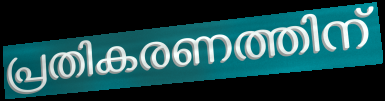
പ്രതികരണത്തിന്